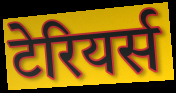
टेरियर्स